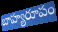
బాహ్యరూపం